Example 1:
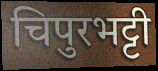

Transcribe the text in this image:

चिपुरभट्टी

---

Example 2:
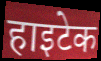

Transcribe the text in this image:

हाइटेक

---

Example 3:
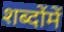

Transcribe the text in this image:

शब्दोंमें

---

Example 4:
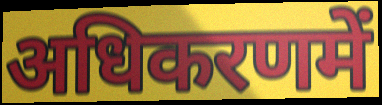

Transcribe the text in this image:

अधिकरणमें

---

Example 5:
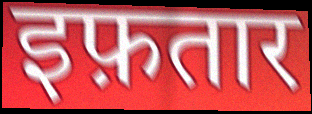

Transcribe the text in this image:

इफ़तार